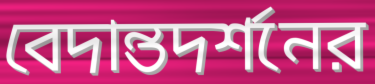
বেদান্তদর্শনের